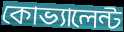
কোভ্যালেন্ট